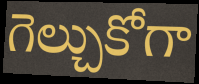
గెల్చుకోగా